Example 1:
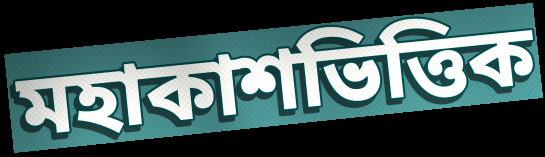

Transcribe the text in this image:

মহাকাশভিত্তিক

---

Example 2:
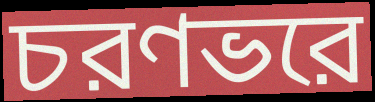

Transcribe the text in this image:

চরণভরে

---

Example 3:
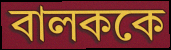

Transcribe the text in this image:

বালককে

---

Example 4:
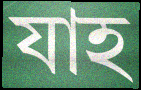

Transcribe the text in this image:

যাহ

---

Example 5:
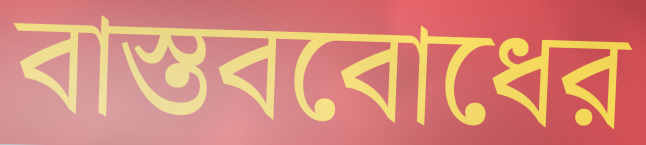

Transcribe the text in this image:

বাস্তববোধের